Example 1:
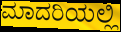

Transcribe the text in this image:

ಮಾದರಿಯಲ್ಲಿ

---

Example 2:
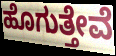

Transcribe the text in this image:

ಹೊಗುತ್ತೇವೆ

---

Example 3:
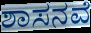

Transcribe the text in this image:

ಶಾಸನವೆ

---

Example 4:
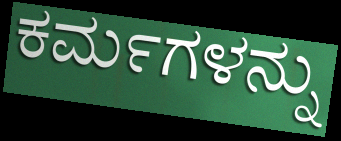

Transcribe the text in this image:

ಕರ್ಮಗಳನ್ನು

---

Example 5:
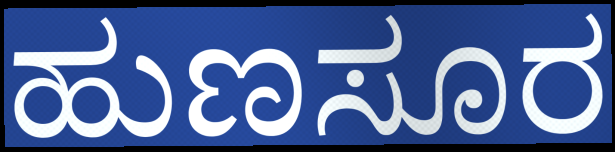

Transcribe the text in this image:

ಹುಣಸೂರ